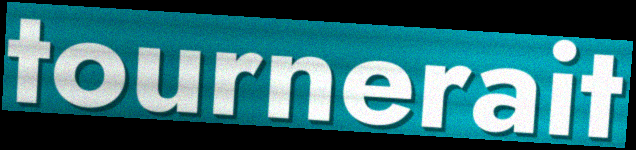
tournerait